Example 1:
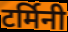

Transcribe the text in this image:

टर्मिनी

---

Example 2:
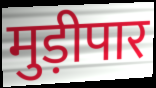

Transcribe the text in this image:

मुड़ीपार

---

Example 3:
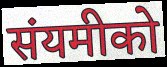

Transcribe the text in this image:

संयमीको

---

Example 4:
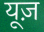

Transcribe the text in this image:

यूज़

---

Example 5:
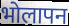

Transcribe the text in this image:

भोलापन